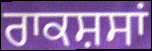
ਰਾਕਸ਼ਸਾਂ